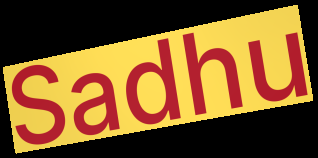
Sadhu